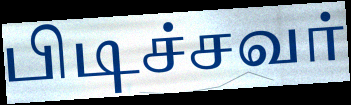
பிடிச்சவர்